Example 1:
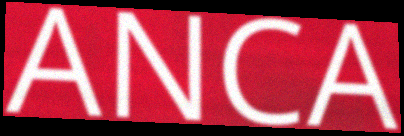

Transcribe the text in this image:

ANCA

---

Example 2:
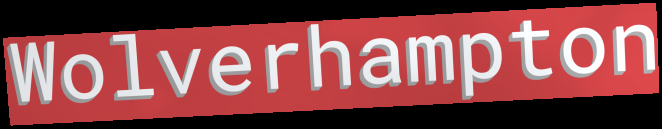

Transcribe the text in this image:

Wolverhampton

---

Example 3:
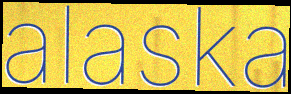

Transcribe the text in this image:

alaska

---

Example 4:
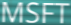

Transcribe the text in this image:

MSFT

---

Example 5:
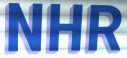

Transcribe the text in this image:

NHR